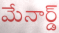
మేనార్డ్